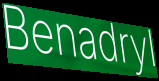
Benadryl